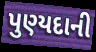
પુણ્યદાની